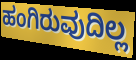
ಹಂಗಿರುವುದಿಲ್ಲ